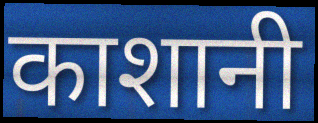
काशानी